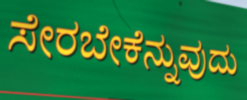
ಸೇರಬೇಕೆನ್ನುವುದು